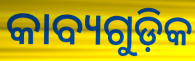
କାବ୍ୟଗୁଡ଼ିକ